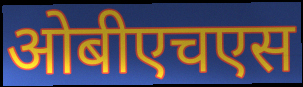
ओबीएचएस